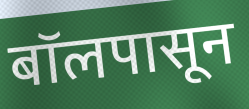
बॉलपासून